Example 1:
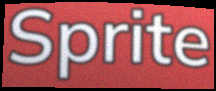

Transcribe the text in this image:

Sprite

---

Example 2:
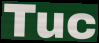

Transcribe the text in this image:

Tuc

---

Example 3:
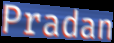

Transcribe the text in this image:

Pradan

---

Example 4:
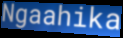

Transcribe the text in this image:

Ngaahika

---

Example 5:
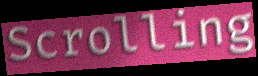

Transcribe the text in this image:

Scrolling